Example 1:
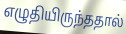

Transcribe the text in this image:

எழுதியிருந்ததால்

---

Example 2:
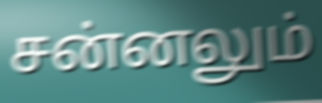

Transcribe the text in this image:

சன்னலும்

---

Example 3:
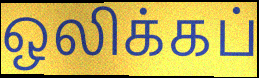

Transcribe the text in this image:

ஒலிக்கப்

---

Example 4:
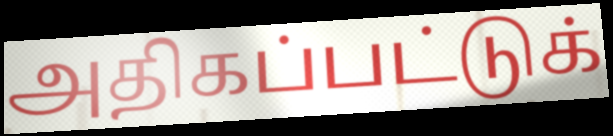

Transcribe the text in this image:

அதிகப்பட்டுக்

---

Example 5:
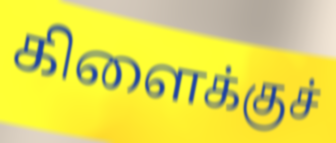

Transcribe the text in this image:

கிளைக்குச்